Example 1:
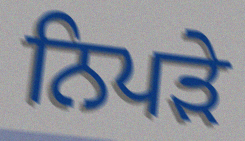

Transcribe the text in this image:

ਨਿਪੜੇ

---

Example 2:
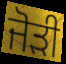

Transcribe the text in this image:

ਜੋਡ਼ੀ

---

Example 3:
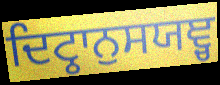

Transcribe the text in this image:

ਦਿਟ੍ਠਾਨੁਸਯਞ੍ਚ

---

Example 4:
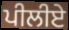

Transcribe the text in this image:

ਪੀਲੀਏ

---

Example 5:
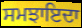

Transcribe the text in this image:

ਸਮਝਾਇਦਾ